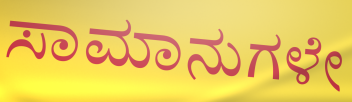
ಸಾಮಾನುಗಳೇ